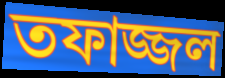
তফাজ্জল